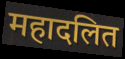
महादलित